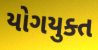
યોગયુક્ત